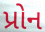
પ્રોન